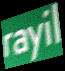
rayil